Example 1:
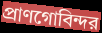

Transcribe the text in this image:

প্রাণগোবিন্দর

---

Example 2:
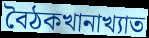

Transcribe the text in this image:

বৈঠকখানাখ্যাত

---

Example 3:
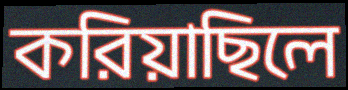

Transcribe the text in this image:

করিয়াছিলে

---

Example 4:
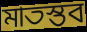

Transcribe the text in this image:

মাতস্তব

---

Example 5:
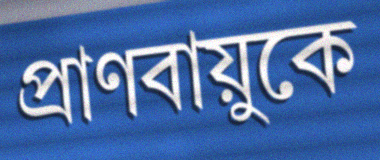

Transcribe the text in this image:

প্রাণবায়ুকে